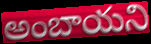
అంబాయని